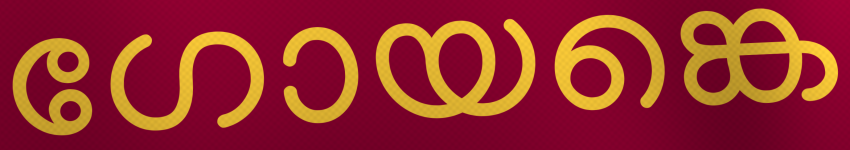
ഗോയങ്കെ